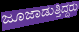
ಜೂಜಾಡುತ್ತಿದ್ದರು